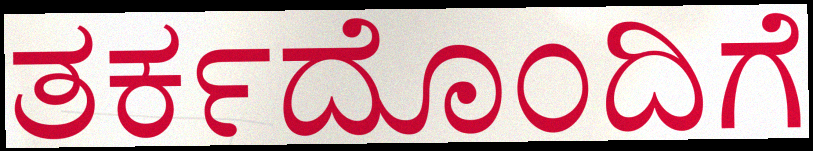
ತರ್ಕದೊಂದಿಗೆ